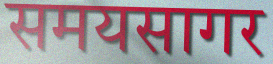
समयसागर